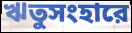
ঋতুসংহারে